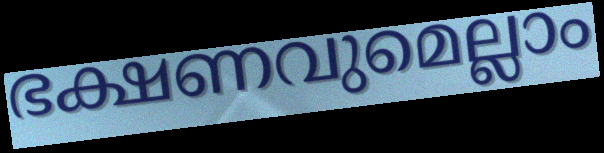
ഭക്ഷണവുമെല്ലാം